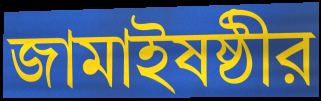
জামাইষষ্ঠীর